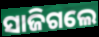
ସାଜିଗଲେ